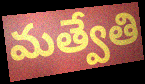
మత్వేతి